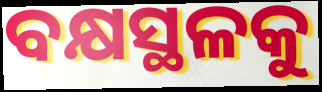
ବକ୍ଷସ୍ଥଳକୁ